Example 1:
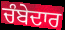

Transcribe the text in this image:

ਚੰਬੇਦਾਰ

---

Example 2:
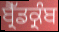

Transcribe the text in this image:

ਬ੍ਰੈੱਡਕ੍ਰੰਬ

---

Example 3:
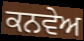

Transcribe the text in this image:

ਕਨਵੇਅ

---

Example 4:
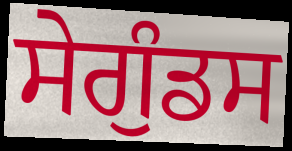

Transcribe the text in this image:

ਸੇਗੁੰਡਸ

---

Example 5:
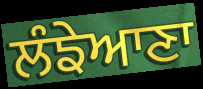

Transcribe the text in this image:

ਲੰਙੇਆਣਾ